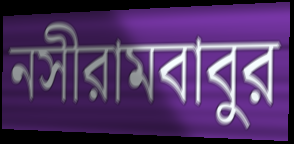
নসীরামবাবুর